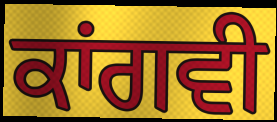
ਕਾਂਗਵੀ